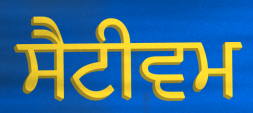
ਸੈਟੀਵਮ